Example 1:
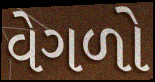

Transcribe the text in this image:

વેગળો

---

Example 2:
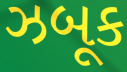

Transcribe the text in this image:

ઝબૂક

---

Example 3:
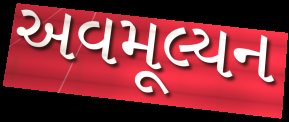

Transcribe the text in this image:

અવમૂલ્યન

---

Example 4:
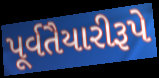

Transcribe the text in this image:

પૂર્વતૈયારીરૂપે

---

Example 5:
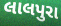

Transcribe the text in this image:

લાલપુરા